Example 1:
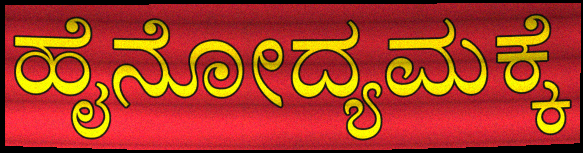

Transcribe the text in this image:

ಹೈನೋದ್ಯಮಕ್ಕೆ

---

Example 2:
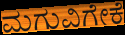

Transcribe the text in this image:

ಮಗುವಿಗೇಕೆ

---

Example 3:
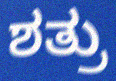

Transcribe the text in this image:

ಶತ್ರು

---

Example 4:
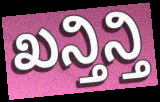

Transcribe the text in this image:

ಖನ್ತಿನ್ತಿ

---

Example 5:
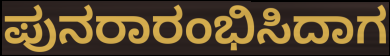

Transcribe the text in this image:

ಪುನರಾರಂಭಿಸಿದಾಗ